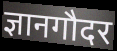
ज्ञानगौदर